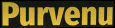
Purvenu